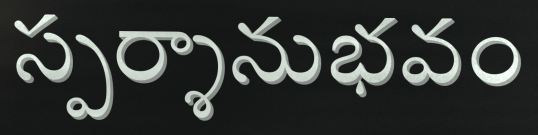
స్పర్శానుభవం